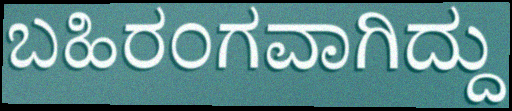
ಬಹಿರಂಗವಾಗಿದ್ದು